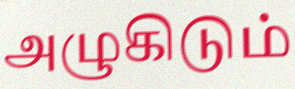
அழுகிடும்